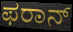
ಫರಾನ್